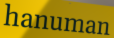
hanuman